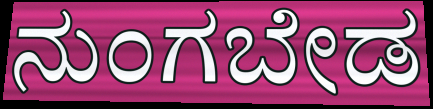
ನುಂಗಬೇಡ